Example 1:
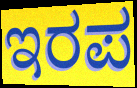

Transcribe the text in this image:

ಇರಪ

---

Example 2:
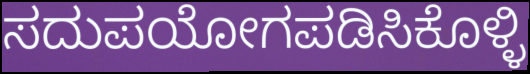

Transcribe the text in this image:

ಸದುಪಯೋಗಪಡಿಸಿಕೊಳ್ಳಿ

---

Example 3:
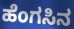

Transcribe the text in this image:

ಹೆಂಗಸಿನ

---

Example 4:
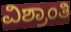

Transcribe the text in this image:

ವಿಶ್ರಾಂತಿ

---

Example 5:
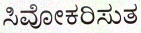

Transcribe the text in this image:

ಸಿವೋಕರಿಸುತ